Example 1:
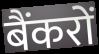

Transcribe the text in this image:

बैंकरों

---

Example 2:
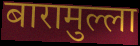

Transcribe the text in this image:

बारामुल्‍ला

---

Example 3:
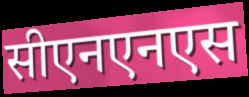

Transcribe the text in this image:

सीएनएनएस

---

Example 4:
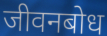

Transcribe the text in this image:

जीवनबोध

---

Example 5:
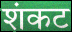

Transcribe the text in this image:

शंकट